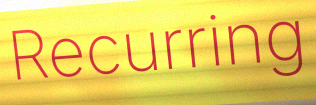
Recurring